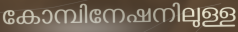
കോമ്പിനേഷനിലുള്ള